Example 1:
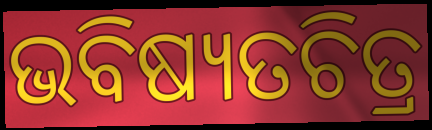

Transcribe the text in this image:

ଭବିଷ୍ୟତଚିତ୍ର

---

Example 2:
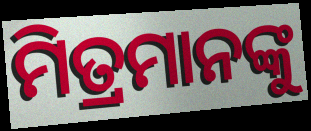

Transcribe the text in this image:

ମିତ୍ରମାନଙ୍କୁ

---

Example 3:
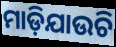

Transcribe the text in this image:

ମାଡ଼ିଯାଉଚି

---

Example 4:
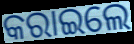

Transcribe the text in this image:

କରାଇଲେ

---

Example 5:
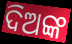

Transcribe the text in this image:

ଦିଅଙ୍କ